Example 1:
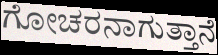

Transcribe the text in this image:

ಗೋಚರನಾಗುತ್ತಾನೆ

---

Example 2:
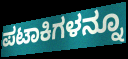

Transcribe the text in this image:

ಪಟಾಕಿಗಳನ್ನೂ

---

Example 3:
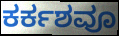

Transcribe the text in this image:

ಕರ್ಕಶವೂ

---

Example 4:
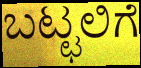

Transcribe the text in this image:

ಬಟ್ಟಲಿಗೆ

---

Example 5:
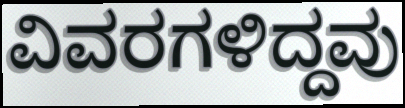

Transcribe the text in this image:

ವಿವರಗಳಿದ್ದವು